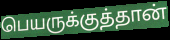
பெயருக்குத்தான்